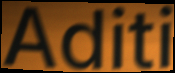
Aditi